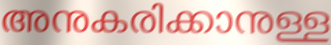
അനുകരിക്കാനുള്ള